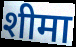
शीमा